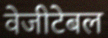
वेजीटेबल